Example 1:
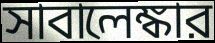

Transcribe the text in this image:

সাবালেঙ্কার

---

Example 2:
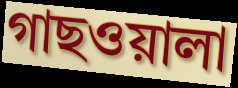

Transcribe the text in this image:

গাছওয়ালা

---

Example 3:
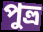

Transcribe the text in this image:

পুত্ত্র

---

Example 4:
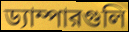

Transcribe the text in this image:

ড্যাম্পারগুলি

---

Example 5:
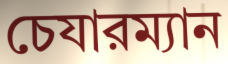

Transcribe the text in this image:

চেযারম্যান